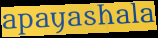
apayashala